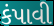
કંપાવી